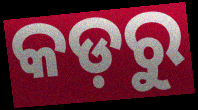
କଡ଼ରୁ